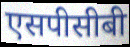
एसपीसीबी